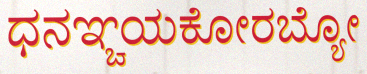
ಧನಞ್ಚಯಕೋರಬ್ಯೋ